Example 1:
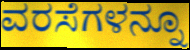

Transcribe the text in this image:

ವರಸೆಗಳನ್ನೂ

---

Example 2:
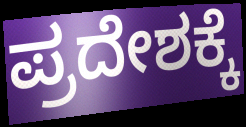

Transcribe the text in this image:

ಪ್ರದೇಶಕ್ಕೆ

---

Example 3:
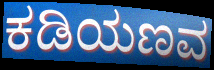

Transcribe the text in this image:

ಕಡಿಯಣವ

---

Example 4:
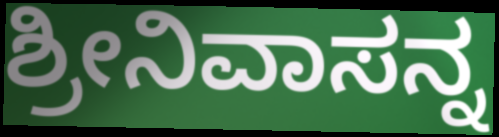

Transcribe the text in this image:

ಶ್ರೀನಿವಾಸನ್ನ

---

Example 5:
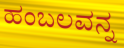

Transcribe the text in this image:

ಹಂಬಲವನ್ನ